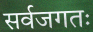
सर्वजगतः